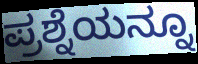
ಪ್ರಶ್ನೆಯನ್ನೂ